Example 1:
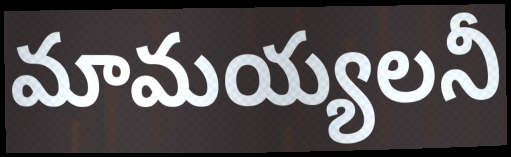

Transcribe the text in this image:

మామయ్యలనీ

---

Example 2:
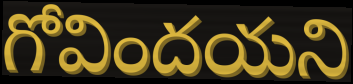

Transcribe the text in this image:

గోవిందయని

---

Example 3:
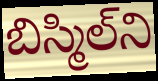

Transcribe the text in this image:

బిస్మిల్‌ని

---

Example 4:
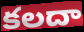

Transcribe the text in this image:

కలదా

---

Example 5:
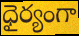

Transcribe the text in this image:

ధైర్యంగా